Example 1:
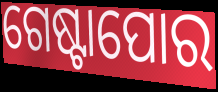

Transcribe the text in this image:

ଗେଷ୍ଟାପୋର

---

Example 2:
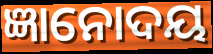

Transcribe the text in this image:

ଜ୍ଞାନୋଦୟ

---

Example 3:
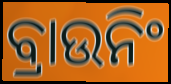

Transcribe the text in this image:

ବ୍ରାଉନିଂ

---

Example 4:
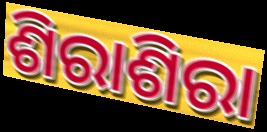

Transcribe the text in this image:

ଶିରାଶିରା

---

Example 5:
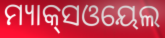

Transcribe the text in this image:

ମ୍ୟାକ୍‌ସଓୟେଲ